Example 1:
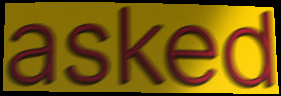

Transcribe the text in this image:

asked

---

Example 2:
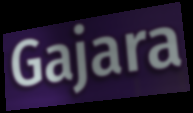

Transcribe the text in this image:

Gajara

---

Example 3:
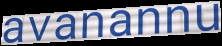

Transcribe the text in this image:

avanannu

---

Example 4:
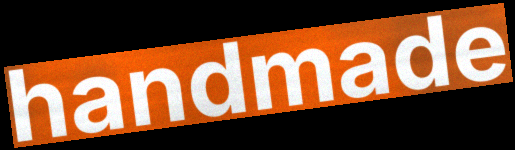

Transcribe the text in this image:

handmade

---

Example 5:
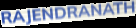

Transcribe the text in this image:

RAJENDRANATH